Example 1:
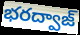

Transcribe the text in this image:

భరద్వాజ్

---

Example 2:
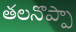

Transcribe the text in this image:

తలనొప్పా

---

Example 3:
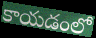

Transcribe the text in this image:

కాయడంలో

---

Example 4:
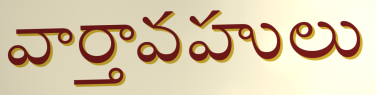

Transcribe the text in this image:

వార్తావహులు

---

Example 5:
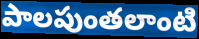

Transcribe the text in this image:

పాలపుంతలాంటి